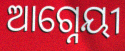
ଆଗ୍ନେୟୀ